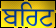
ਬਰਿਟ